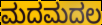
ಮದಮದಲ